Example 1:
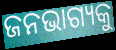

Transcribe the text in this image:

ଜନଭାଗ୍ୟକୁ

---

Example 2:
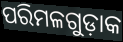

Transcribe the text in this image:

ପରିମଳଗୁଡ଼ାକ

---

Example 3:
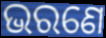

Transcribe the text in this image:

ଭରଣେ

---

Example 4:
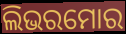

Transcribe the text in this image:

ଲିଭରମୋର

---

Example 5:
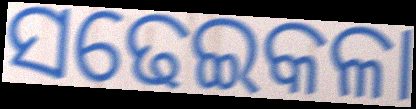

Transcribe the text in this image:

ସଢେଇକଳା